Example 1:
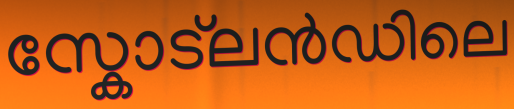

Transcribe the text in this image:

സ്കോട്ലൻഡിലെ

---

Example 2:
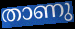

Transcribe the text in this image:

താണു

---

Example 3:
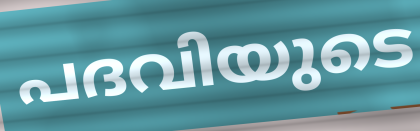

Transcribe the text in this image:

പദവിയുടെ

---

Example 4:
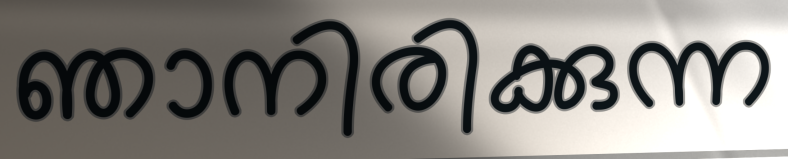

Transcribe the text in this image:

ഞാനിരിക്കുന്ന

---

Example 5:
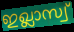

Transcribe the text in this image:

ഇഖ്ലാസ്വ്